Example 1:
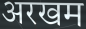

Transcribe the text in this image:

अरखम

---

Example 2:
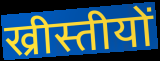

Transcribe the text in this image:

ख्रीस्तीयों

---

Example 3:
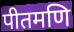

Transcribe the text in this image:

पीतमणि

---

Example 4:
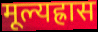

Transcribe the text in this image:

मूल्यह्रास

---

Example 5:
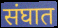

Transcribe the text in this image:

संघात